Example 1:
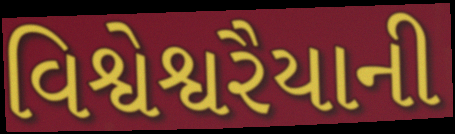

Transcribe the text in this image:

વિશ્વેશ્વરૈયાની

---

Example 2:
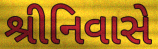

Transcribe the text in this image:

શ્રીનિવાસે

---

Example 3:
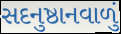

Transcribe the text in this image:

સદનુષ્ઠાનવાળું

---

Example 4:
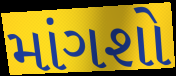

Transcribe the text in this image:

માંગશો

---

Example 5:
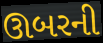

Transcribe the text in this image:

ઊબરની